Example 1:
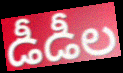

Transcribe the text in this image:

డీడీల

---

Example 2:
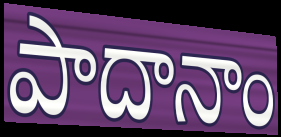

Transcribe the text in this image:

పాదానాం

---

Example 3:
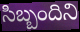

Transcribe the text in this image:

సిబ్బందిని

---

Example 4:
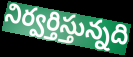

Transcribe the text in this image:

నిర్వర్తిస్తున్నది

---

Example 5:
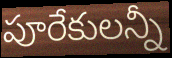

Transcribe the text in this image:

పూరేకులన్నీ